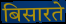
बिसारते